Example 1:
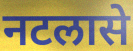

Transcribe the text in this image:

नटलासे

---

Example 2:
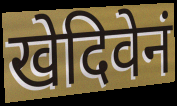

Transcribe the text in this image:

खेदिवेनं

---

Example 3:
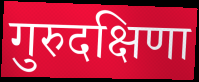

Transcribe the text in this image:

गुरुदक्षिणा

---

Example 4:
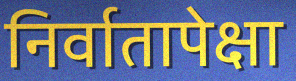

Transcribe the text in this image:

निर्वातापेक्षा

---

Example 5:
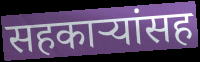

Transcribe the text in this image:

सहकाऱ्यांसह